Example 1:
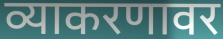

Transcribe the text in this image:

व्याकरणावर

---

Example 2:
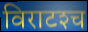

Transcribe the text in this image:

विराटश्च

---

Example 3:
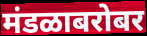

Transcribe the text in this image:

मंडळाबरोबर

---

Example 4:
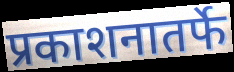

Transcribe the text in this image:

प्रकाशनातर्फे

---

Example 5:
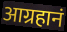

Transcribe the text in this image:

आग्रहानं